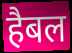
हैबल